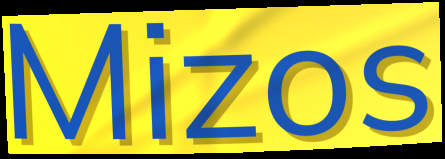
Mizos